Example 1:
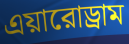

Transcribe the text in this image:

এয়ারোড্রাম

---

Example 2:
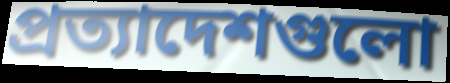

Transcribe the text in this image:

প্রত্যাদেশগুলো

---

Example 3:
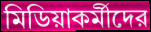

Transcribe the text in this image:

মিডিয়াকর্মীদের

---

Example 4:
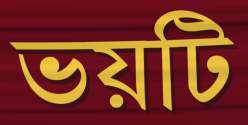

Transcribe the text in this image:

ভয়টি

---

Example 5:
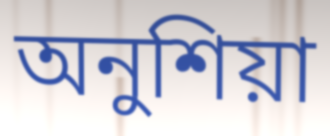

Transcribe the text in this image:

অনুশিয়া